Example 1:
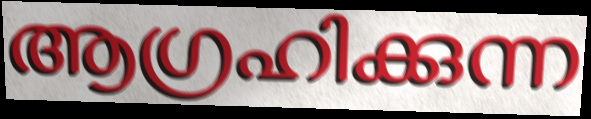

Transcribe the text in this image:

ആഗ്രഹിക്കുന്ന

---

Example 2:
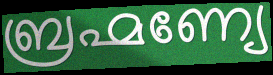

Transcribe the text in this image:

ബ്രഹ്മണ്യേ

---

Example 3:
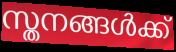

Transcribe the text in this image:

സ്തനങ്ങൾക്ക്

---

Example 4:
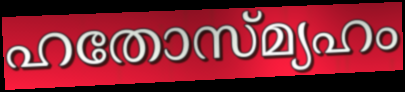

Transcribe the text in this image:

ഹതോസ്മ്യഹം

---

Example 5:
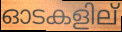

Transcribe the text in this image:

ഓടകളില്